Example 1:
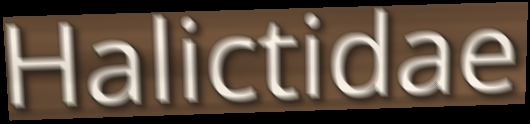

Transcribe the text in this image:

Halictidae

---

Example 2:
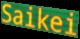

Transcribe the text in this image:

Saikei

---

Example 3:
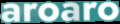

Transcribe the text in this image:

aroaro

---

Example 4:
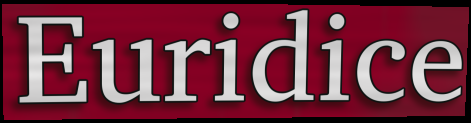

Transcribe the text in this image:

Euridice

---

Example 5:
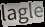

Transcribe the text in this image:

lagle